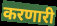
करणारी